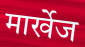
मार्खेज